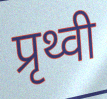
प्रृथ्वी